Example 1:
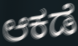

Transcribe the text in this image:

ಆಕಡೆ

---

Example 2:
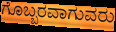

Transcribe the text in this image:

ಗೊಬ್ಬರವಾಗುವರು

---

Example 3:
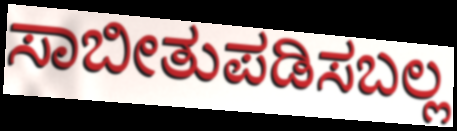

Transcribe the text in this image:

ಸಾಬೀತುಪಡಿಸಬಲ್ಲ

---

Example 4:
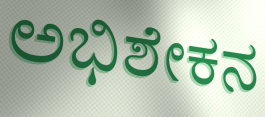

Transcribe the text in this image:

ಅಭಿಶೇಕನ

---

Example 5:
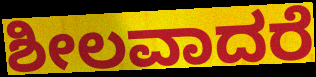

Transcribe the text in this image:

ಶೀಲವಾದರೆ